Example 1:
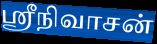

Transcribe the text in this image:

ஸ்ரீநிவாசன்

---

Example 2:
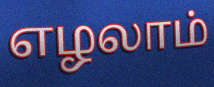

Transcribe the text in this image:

எழலாம்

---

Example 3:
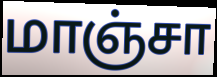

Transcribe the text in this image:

மாஞ்சா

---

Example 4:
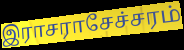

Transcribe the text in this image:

இராசராசேச்சரம்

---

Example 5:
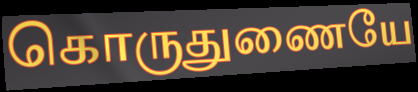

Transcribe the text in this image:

கொருதுணையே